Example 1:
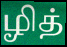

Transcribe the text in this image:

ழித்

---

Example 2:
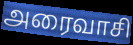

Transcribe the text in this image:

அரைவாசி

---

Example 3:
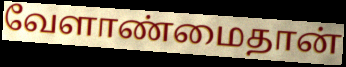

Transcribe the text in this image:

வேளாண்மைதான்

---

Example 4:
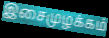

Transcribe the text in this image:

இசைமுழக்கம்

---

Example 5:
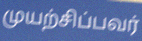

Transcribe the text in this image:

முயற்சிப்பவர்